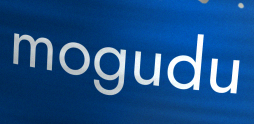
mogudu